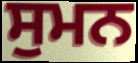
ਸੁਮਨ